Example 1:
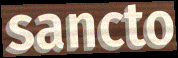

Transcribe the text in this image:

sancto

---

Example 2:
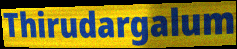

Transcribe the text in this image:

Thirudargalum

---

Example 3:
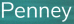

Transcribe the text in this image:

Penney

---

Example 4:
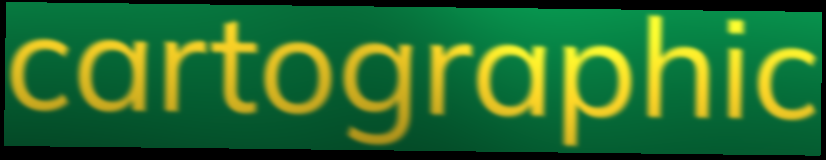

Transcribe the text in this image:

cartographic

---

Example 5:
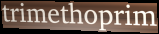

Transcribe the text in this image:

trimethoprim